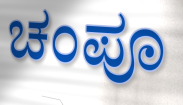
ಚಂಪೂ